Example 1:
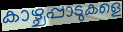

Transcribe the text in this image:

കാഴ്ചപ്പാടുകളെ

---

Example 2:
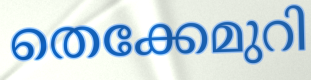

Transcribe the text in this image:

തെക്കേമുറി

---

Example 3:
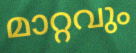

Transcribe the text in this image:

മാറ്റവും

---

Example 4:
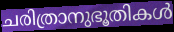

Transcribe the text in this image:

ചരിത്രാനുഭൂതികൾ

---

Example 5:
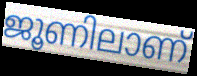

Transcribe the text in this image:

ജൂണിലാണ്